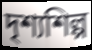
দৃশ্যশিল্প